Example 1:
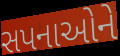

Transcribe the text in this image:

સપનાઓને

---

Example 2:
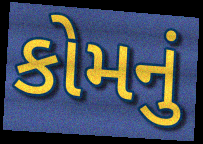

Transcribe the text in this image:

કોમનું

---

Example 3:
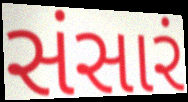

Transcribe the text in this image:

સંસારં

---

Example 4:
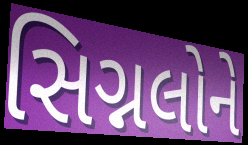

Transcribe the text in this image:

સિગ્નલોને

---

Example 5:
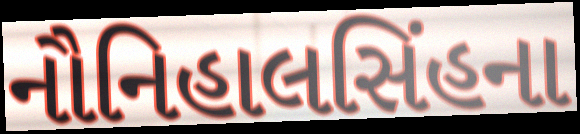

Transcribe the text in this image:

નૌનિહાલસિંહના